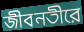
জীবনতীরে